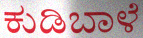
ಕುಡಿಬಾಳೆ